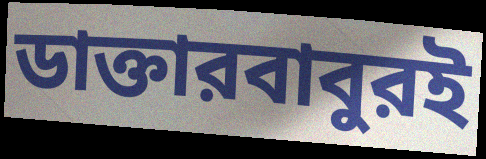
ডাক্তারবাবুরই